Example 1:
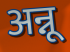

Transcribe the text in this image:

अन्नू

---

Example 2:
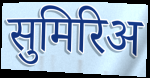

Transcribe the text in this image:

सुमिरिअ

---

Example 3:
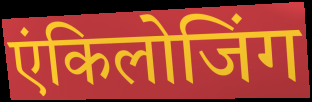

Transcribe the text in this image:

एंकिलोजिंग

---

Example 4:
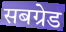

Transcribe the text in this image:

सबग्रेड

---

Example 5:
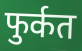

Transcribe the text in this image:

फुर्कत